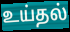
உய்தல்